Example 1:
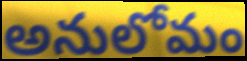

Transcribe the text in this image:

అనులోమం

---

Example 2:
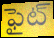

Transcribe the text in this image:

ఫైట్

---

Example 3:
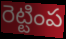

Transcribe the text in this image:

రెట్టింప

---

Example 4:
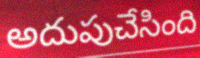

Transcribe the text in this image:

అదుపుచేసింది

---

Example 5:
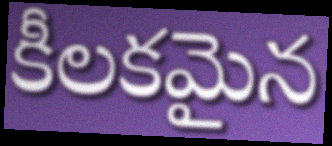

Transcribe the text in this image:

కీలకమైన